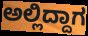
ಅಲ್ಲಿದ್ದಾಗ